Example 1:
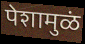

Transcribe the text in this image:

पेशामुळं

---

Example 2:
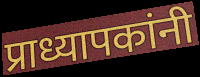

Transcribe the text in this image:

प्राध्यापकांनी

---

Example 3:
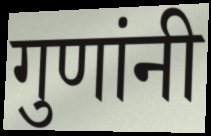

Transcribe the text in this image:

गुणांनी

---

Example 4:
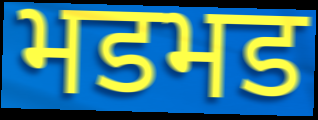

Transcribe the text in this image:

भडभड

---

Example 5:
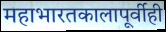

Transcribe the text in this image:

महाभारतकालापूर्वीही